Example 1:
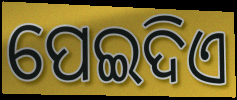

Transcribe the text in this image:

ପେଇଦିଏ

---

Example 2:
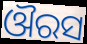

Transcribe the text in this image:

ଔରସ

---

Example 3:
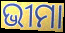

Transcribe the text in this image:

ଭୀମା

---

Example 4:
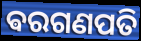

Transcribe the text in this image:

ଵରଗଣପତି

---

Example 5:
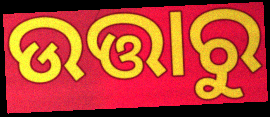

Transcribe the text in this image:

ଉତ୍ତାରୁ